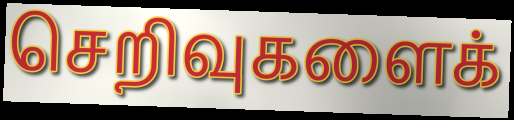
செறிவுகளைக்